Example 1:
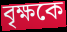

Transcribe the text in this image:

বৃক্ষকে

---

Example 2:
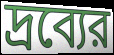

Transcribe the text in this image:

দ্রব্যের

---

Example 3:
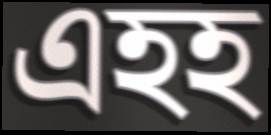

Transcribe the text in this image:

এহহ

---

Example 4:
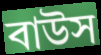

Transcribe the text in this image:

বাউস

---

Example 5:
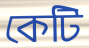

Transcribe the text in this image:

কেটি